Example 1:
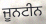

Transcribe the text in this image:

ਜੂਨਟੀਨ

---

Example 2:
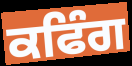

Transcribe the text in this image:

ਕਫਿੰਗ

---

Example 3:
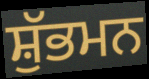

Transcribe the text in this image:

ਸ਼ੁੱਭਮਨ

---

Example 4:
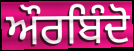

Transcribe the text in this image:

ਔਰਬਿੰਦੋ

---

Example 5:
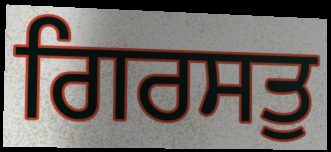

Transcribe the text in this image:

ਗਿਰਸਤੁ